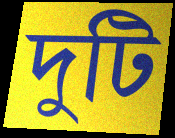
দুটি